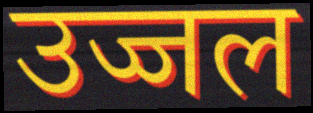
उज्जल